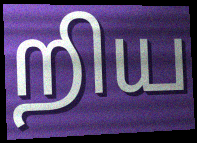
றிய